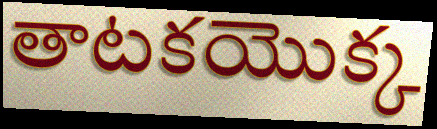
తాటకయొక్క